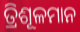
ତ୍ରିଶୂଳମାନ